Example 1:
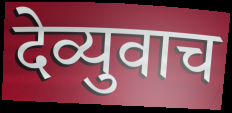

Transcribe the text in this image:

देव्युवाच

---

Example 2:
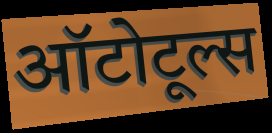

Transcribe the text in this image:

ऑटोटूल्स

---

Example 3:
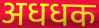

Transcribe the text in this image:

अधधक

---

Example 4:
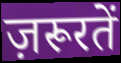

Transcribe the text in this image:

ज़रूरतें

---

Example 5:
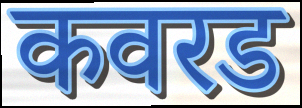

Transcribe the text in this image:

कवरड